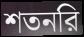
শতনরি